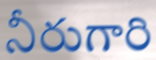
నీరుగారి